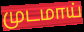
முடமாய்